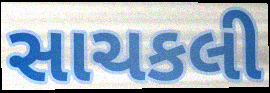
સાચકલી